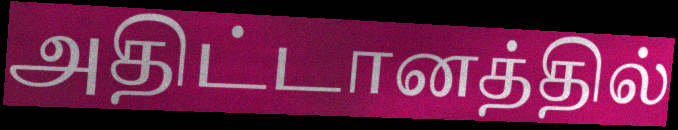
அதிட்டானத்தில்